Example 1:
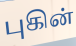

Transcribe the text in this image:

புகின்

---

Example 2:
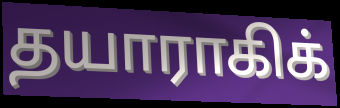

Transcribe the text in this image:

தயாராகிக்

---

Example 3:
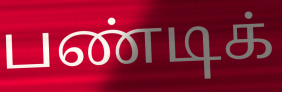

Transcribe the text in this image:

பண்டிக்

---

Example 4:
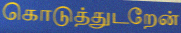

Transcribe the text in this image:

கொடுத்துடறேன்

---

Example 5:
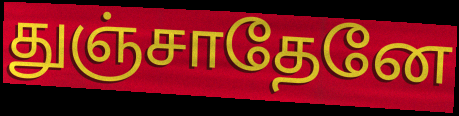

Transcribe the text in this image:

துஞ்சாதேனே